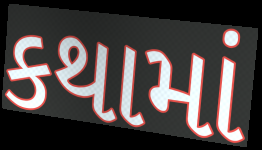
કથામાં